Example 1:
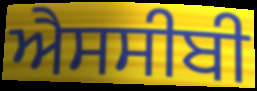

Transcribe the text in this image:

ਐਸਸੀਬੀ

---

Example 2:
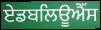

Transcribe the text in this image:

ਏਡਬਲਿਊਐੱਸ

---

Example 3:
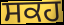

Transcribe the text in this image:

ਸਕਹ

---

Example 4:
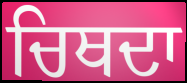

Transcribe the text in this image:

ਚਿਥਦਾ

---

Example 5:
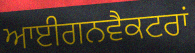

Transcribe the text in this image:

ਆਈਗਨਵੈਕਟਰਾਂ